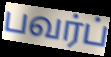
பவர்ப்